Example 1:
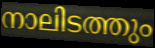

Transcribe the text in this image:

നാലിടത്തും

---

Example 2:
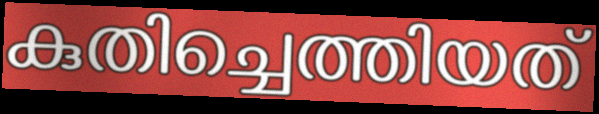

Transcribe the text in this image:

കുതിച്ചെത്തിയത്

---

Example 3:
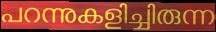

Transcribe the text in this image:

പറന്നുകളിച്ചിരുന്ന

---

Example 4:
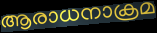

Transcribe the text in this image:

ആരാധനാക്രമ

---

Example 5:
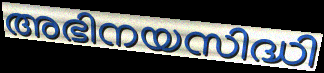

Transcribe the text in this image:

അഭിനയസിദ്ധി